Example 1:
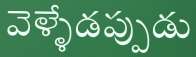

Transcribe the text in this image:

వెళ్ళేడప్పుడు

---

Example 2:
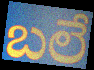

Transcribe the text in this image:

బలే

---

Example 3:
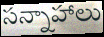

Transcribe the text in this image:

సన్నాహాలు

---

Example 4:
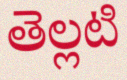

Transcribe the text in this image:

తెల్లటి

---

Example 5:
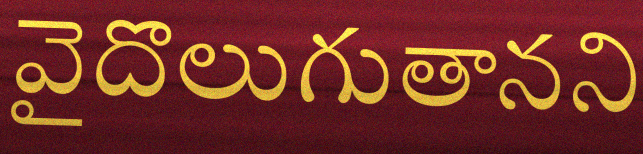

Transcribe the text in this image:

వైదొలుగుతానని